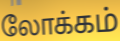
லோக்கம்